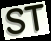
ST